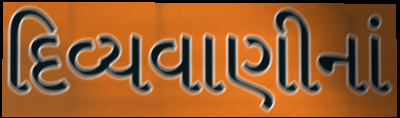
દિવ્યવાણીનાં